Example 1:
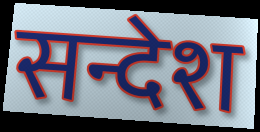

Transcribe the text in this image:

सन्देश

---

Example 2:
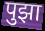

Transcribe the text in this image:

पुझा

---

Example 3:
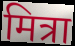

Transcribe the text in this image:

मित्रा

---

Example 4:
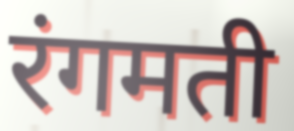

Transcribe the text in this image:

रंगमती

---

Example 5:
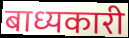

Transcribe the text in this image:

बाध्यकारी